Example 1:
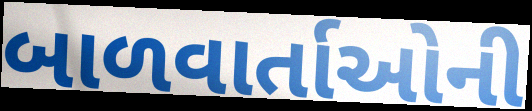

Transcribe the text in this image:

બાળવાર્તાઓની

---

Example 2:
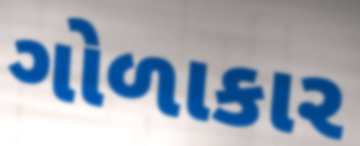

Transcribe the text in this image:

ગોળાકાર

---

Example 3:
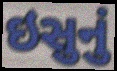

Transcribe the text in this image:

ઇસુનું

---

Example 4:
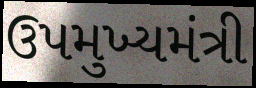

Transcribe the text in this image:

ઉપમુખ્યમંત્રી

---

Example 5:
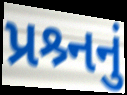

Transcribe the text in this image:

પ્રશ્ર્નનું